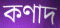
কণাদ